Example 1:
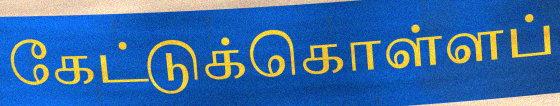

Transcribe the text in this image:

கேட்டுக்கொள்ளப்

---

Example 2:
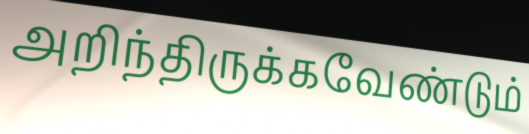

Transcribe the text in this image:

அறிந்திருக்கவேண்டும்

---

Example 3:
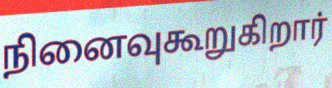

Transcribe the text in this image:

நினைவுகூறுகிறார்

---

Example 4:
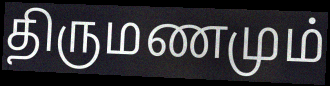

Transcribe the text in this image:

திருமணமும்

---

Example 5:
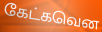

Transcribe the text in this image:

கேட்கவென